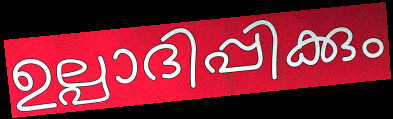
ഉല്പാദിപ്പിക്കും